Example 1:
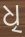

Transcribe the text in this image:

ଧି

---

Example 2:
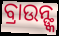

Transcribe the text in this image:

ବ୍ରାଉନ୍ଙ୍କ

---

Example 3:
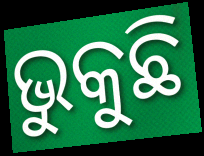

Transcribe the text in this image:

ଭୁକୁଛି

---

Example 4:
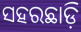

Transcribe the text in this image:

ସହରଛାଡ଼ି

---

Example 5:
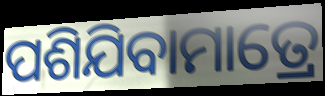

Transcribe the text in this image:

ପଶିଯିବାମାତ୍ରେ